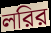
লরির